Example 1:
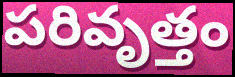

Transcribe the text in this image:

పరివృత్తం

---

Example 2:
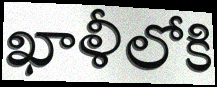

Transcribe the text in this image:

ఖాళీలోకి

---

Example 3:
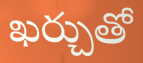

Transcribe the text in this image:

ఖర్చుతో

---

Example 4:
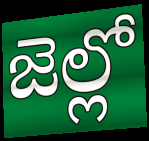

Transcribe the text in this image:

జెల్లో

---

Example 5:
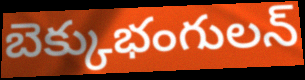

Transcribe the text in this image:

బెక్కుభంగులన్